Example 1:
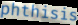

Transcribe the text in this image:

phthisis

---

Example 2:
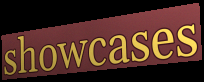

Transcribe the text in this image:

showcases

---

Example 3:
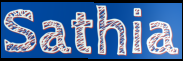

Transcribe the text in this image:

Sathia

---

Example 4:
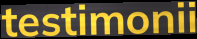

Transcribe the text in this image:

testimonii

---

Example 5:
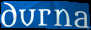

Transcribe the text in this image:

durna